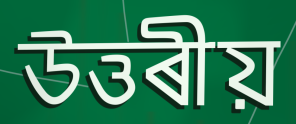
উত্তৰীয়